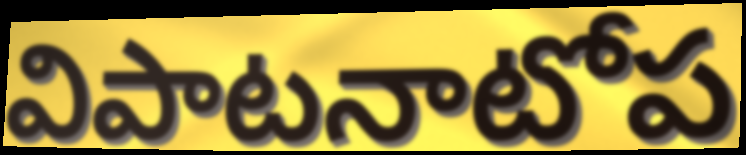
విపాటనాటోప